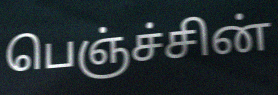
பெஞ்ச்சின்